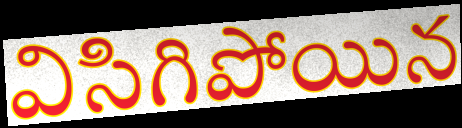
విసిగిపోయిన